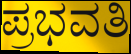
ಪ್ರಭವತಿ